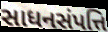
સાધનસંપત્તિ